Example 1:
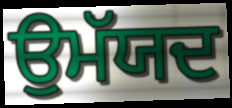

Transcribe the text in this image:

ਉਮੱਯਦ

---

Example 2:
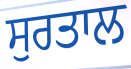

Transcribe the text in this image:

ਸੁਰਤਾਲ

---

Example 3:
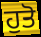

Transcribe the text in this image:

ਹੁਤੋ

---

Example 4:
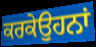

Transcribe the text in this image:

ਕਰਕੇਉਹਨਾਂ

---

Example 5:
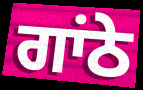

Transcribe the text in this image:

ਗਾਂਠੇ